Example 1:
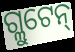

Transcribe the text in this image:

ଗ୍ଲୁଟେନ୍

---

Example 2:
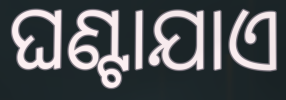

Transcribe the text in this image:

ଘଣ୍ଟାଯାଏ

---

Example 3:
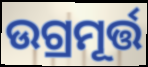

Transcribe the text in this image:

ଉଗ୍ରମୂର୍ତ୍ତ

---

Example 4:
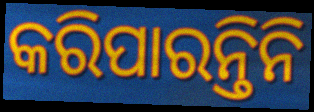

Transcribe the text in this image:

କରିପାରନ୍ତିନି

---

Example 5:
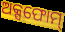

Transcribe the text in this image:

ଅକ୍ସଫୋମ୍